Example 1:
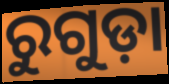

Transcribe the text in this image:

ରୁଗୁଡ଼ା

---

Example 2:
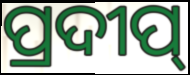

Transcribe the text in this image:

ପ୍ରଦୀପ୍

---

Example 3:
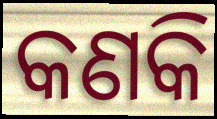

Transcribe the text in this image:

କଣକି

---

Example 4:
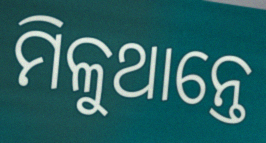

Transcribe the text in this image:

ମିଳୁଥାନ୍ତେ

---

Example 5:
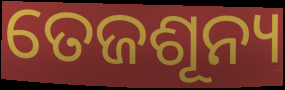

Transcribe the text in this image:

ତେଜଶୂନ୍ୟ